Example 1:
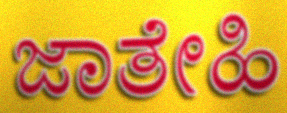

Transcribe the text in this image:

ಜಾತೇಹಿ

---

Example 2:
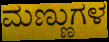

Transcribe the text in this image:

ಮಣ್ಣುಗಳ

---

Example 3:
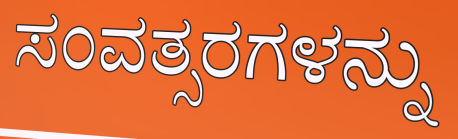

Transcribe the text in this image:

ಸಂವತ್ಸರಗಳನ್ನು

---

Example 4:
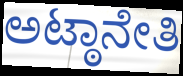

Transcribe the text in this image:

ಅಟ್ಠಾನೇತಿ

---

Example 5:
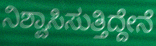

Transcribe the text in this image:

ನಿಶ್ವಾಸಿಸುತ್ತಿದ್ದೇನೆ